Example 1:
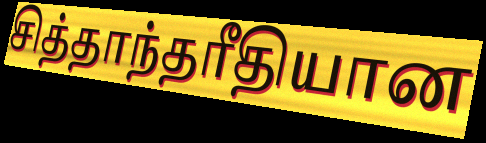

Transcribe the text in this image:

சித்தாந்தரீதியான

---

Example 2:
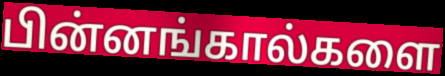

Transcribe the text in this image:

பின்னங்கால்களை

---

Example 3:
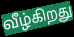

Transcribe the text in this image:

வீழ்கிறது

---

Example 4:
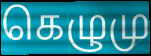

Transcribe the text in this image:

கெழுமு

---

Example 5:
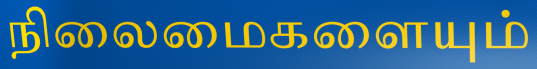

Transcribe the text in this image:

நிலைமைகளையும்